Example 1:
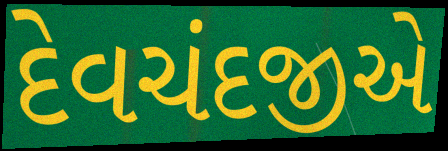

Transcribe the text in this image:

દેવચંદજીએ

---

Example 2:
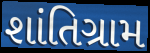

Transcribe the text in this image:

શાંતિગ્રામ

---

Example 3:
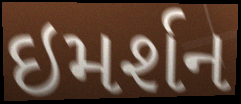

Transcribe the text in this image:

ઇમર્શન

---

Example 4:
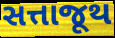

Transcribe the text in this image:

સત્તાજૂથ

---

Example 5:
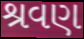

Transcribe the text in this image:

શ્રવણ